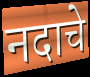
नदाचे